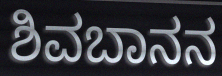
ಶಿವಬಾನನ